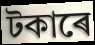
টকাৰে